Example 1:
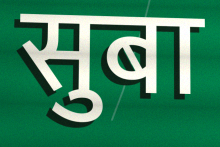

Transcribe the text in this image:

सुबा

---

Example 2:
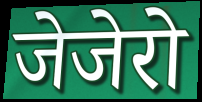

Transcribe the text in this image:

जेजेरो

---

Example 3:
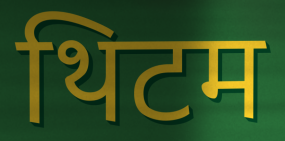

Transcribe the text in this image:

थिटम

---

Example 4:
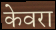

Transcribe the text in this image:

केवरा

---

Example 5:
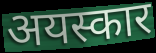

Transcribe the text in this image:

अयस्कार